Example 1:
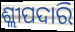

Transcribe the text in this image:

ଶ୍ଲୀପଦାରି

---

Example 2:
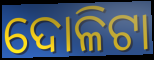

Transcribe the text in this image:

ଦୋଳିଟା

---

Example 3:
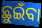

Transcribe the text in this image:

ଛୁଇଁବା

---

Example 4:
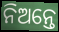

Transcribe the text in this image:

ନିଅନ୍ତେ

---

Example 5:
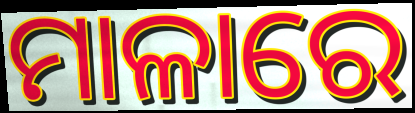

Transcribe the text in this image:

ମାଳାରେ